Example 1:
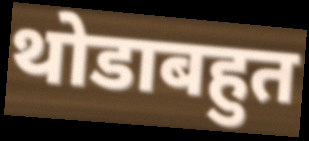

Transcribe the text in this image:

थोडाबहुत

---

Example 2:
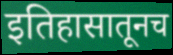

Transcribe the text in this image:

इतिहासातूनच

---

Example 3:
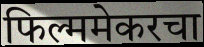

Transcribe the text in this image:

फिल्ममेकरचा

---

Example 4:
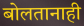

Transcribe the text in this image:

बोलतानाही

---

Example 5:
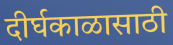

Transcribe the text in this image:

दीर्घकाळासाठी